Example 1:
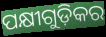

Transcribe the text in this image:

ପକ୍ଷୀଗୁଡ଼ିକର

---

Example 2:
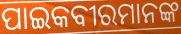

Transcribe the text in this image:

ପାଇକବୀରମାନଙ୍କ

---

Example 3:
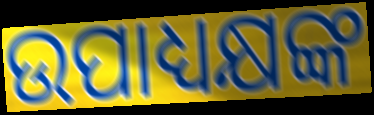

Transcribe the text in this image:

ଉପାଧ୍ୟକ୍ଷଙ୍କ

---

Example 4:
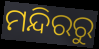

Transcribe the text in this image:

ମନ୍ଦିରରୁ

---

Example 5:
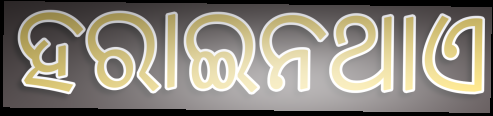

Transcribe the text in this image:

ହରାଇନଥାଏ